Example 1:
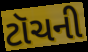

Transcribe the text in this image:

ટૉચની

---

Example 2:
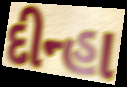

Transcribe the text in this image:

દીન્હા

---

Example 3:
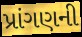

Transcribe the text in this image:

પ્રાંગણની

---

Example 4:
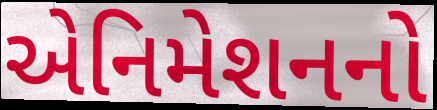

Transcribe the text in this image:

એનિમેશનનો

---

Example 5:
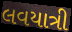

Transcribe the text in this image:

લવયાત્રી